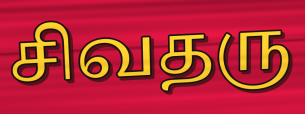
சிவதரு